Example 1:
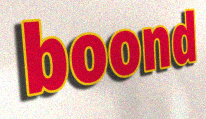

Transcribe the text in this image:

boond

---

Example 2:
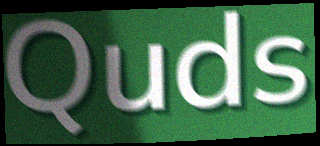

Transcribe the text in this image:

Quds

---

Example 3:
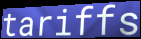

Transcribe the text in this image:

tariffs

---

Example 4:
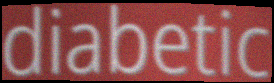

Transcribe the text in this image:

diabetic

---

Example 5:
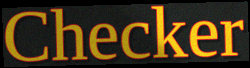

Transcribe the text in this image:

Checker